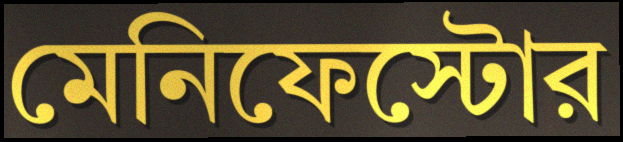
মেনিফেস্টোর